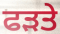
ਫੜਤੇ